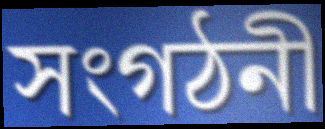
সংগঠনী